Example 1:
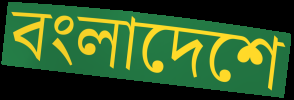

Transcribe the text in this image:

বংলাদেশে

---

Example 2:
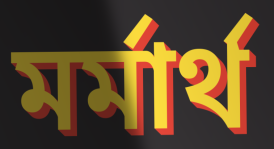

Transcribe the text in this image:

মর্মার্থ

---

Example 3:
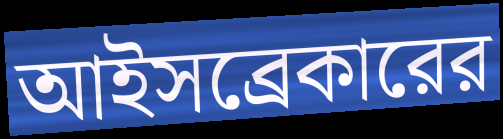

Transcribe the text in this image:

আইসব্রেকারের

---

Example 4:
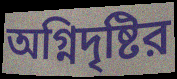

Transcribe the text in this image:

অগ্নিদৃষ্টির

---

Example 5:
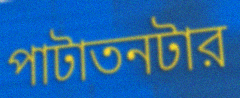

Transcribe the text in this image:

পাটাতনটার